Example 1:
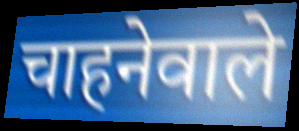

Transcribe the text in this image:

चाहनेवाले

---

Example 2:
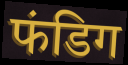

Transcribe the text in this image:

फंडिग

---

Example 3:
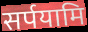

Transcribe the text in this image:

सर्पयामि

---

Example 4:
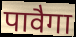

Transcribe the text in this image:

पावैगा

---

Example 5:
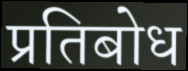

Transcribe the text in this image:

प्रतिबोध